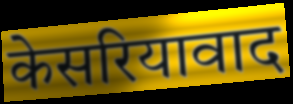
केसरियावाद